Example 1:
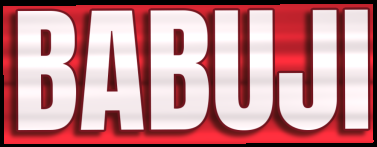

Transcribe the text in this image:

BABUJI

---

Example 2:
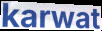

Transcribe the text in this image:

karwat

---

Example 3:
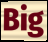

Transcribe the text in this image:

Big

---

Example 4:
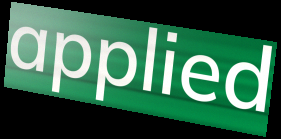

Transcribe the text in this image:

applied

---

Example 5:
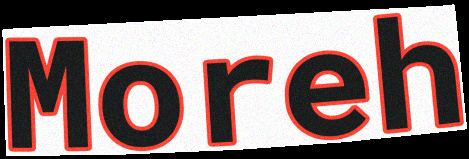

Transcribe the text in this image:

Moreh